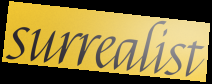
surrealist